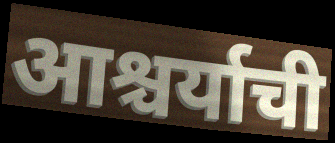
आश्चर्याची